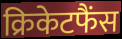
क्रिकेटफैंस